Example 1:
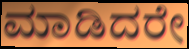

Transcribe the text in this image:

ಮಾಡಿದರೇ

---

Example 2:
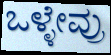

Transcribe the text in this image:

ಒಳ್ಳೇವ್ರು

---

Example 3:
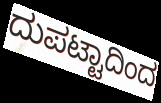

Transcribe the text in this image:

ದುಪಟ್ಟಾದಿಂದ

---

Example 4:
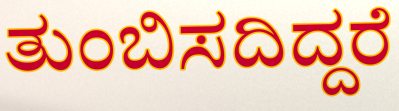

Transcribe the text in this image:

ತುಂಬಿಸದಿದ್ದರೆ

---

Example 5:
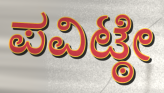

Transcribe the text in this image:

ಪವಿಟ್ಠೇ